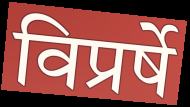
विप्रर्षे